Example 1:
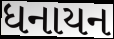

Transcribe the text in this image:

ધનાયન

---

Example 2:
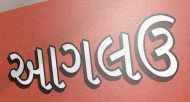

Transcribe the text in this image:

આગલઉ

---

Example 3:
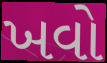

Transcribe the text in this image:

ખવો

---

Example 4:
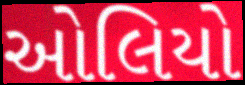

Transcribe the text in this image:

ઓલિયો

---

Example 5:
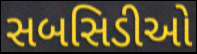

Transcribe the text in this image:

સબસિડીઓ